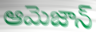
ఆమెజాన్